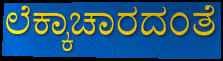
ಲೆಕ್ಕಾಚಾರದಂತೆ